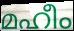
മഹീം